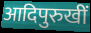
आदिपुरुखीं